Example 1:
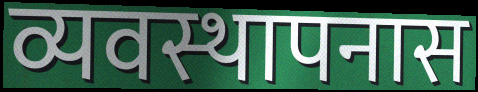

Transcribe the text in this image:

व्यवस्थापनास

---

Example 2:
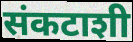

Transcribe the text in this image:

संकटाशी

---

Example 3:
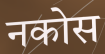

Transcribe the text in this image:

नकोस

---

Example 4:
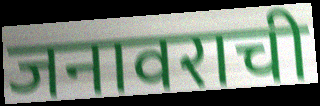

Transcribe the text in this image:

जनावराची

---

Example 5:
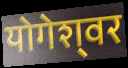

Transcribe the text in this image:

योगेश्वर